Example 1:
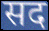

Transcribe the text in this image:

सद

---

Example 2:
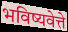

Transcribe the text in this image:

भविष्यवेत्ते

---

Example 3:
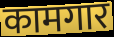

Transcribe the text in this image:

कामगार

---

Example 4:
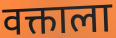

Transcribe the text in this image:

वक्ताला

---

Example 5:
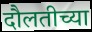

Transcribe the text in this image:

दौलतीच्या